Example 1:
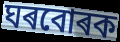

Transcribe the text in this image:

ঘৰবোৰক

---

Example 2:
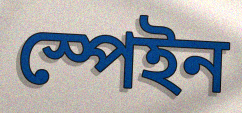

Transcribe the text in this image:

স্পেইন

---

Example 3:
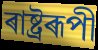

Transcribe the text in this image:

ৰাষ্ট্ৰৰূপী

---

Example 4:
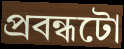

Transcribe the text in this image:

প্ৰবন্ধটো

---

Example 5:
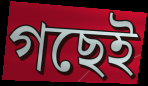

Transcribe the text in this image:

গছেই